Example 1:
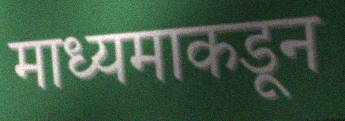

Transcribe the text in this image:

माध्यमाकडून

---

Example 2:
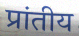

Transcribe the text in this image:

प्रांतीय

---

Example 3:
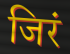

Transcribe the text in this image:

जिरं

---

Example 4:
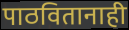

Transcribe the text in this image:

पाठवितानाही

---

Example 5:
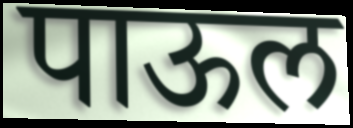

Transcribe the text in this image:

पाऊल